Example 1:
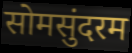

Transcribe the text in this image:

सोमसुंदरम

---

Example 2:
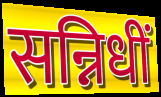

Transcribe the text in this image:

सन्निधीं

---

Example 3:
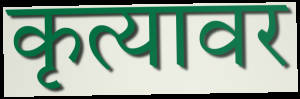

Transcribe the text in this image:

कृत्यावर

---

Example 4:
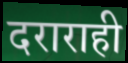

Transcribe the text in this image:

दराराही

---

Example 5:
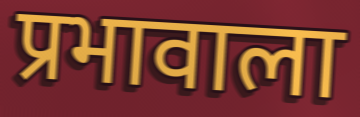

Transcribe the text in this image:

प्रभावाला